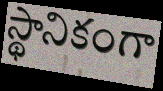
స్థానికంగా